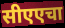
सीएएचा